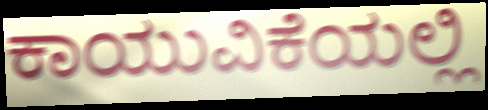
ಕಾಯುವಿಕೆಯಲ್ಲಿ